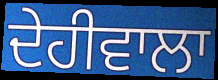
ਦੇਹੀਵਾਲਾ